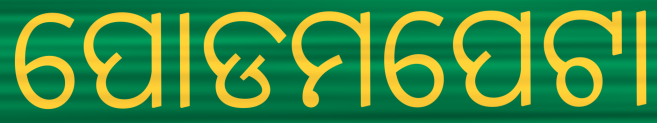
ପୋଡମପେଟା